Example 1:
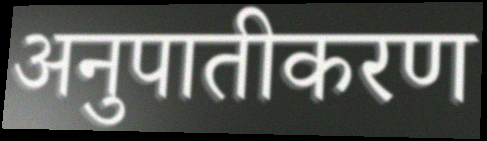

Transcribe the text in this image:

अनुपातीकरण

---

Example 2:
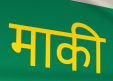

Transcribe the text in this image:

माकी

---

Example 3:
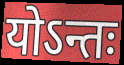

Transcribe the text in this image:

योऽन्तः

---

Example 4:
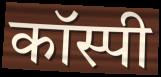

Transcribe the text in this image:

कॉस्पी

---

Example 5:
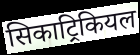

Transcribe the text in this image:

सिकाट्रिकियल